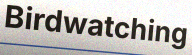
Birdwatching